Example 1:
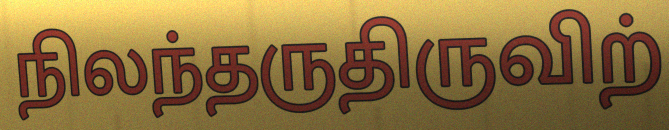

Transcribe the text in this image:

நிலந்தருதிருவிற்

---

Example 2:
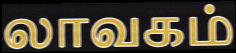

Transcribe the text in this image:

லாவகம்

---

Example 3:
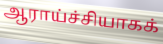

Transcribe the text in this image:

ஆராய்ச்சியாகக்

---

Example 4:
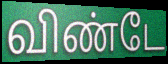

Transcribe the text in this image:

விண்டே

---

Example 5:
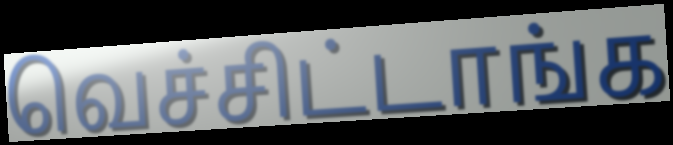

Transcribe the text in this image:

வெச்சிட்டாங்க